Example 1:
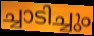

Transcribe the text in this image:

ച്ചാടിച്ചും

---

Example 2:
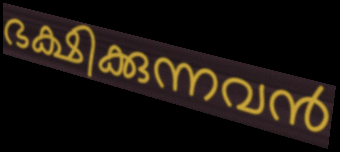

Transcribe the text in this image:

ഭക്ഷിക്കുന്നവൻ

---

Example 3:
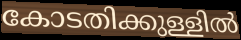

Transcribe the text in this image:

കോടതിക്കുള്ളിൽ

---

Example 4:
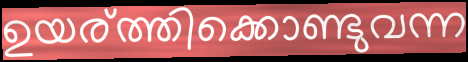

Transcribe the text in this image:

ഉയര്ത്തിക്കൊണ്ടുവന്ന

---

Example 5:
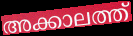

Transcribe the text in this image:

അക്കാലത്ത്